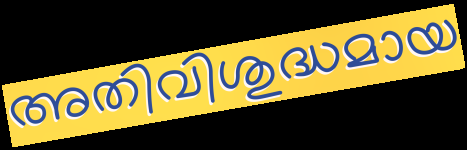
അതിവിശുദ്ധമായ